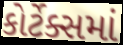
કોર્ટેક્સમાં